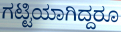
ಗಟ್ಟಿಯಾಗಿದ್ದರೂ